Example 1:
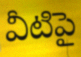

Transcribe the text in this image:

వీటిపై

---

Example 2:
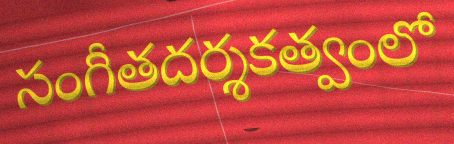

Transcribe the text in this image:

సంగీతదర్శకత్వంలో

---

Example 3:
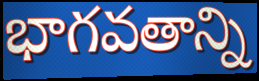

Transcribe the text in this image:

భాగవతాన్ని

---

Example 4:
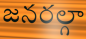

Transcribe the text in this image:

జనరల్గా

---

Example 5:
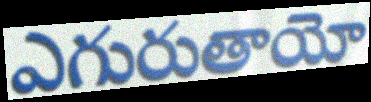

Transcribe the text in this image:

ఎగురుతాయో